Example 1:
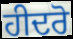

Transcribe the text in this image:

ਹੀਦਰੋ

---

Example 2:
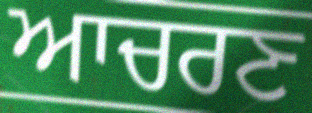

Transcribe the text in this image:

ਆਚਰਣ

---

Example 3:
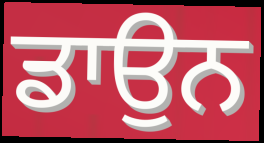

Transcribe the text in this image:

ਡਾਉਨ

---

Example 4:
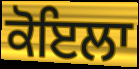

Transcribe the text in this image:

ਕੋਇਲਾ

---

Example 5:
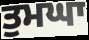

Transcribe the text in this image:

ਤੁਮਘਾ